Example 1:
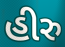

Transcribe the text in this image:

હીરુ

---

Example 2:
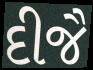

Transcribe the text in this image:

દીજૈ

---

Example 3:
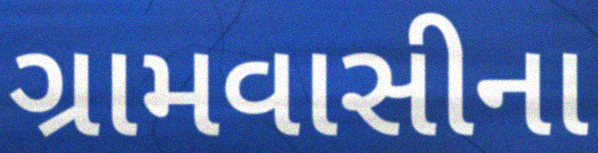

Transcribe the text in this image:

ગ્રામવાસીના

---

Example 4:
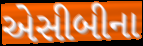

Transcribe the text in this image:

એસીબીના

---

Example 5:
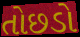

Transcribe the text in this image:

તોછડો